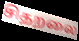
சிதறலை